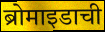
ब्रोमाइडाची